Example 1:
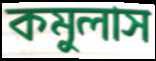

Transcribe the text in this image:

কমুলাস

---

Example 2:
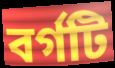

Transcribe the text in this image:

বর্গটি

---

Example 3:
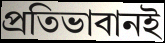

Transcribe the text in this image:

প্রতিভাবানই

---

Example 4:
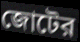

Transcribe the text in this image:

জোটের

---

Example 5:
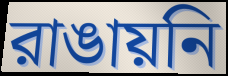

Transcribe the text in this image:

রাঙায়নি